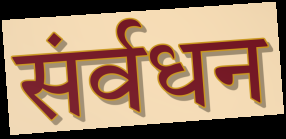
संर्वधन